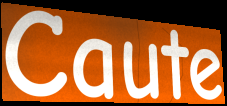
Caute